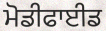
ਮੋਡੀਫਾਈਡ